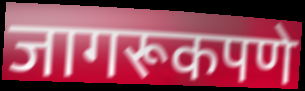
जागरूकपणे